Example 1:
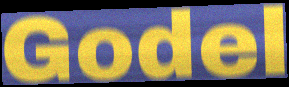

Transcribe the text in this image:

Godel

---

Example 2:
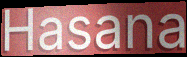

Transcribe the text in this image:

Hasana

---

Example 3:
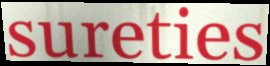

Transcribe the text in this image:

sureties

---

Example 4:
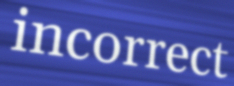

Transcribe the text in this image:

incorrect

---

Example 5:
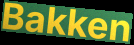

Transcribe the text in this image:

Bakken